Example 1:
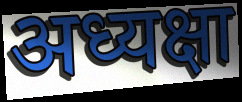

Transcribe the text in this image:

अध्यक्षा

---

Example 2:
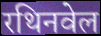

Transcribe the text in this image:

रथिनवेल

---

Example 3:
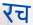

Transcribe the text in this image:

रच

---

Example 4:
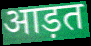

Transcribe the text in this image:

आड़त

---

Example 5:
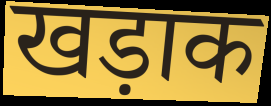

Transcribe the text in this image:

खड़ाक